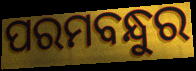
ପରମବନ୍ଧୁର